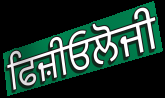
ਫਿਜ਼ੀਓਲੋਜੀ